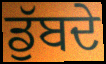
ਡੁੱਬਦੇ